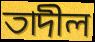
তাদীল